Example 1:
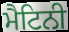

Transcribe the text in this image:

ਮੈਟਿਨੀ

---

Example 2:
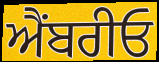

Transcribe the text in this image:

ਐਂਬਰੀਓ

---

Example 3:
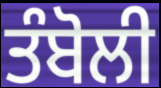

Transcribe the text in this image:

ਤੰਬੋਲੀ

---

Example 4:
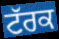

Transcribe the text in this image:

ਟੱਰਕ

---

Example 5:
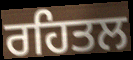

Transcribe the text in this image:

ਰਹਿਤਲ